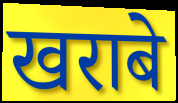
खराबे